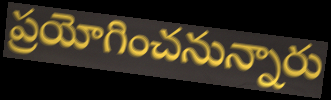
ప్రయోగించనున్నారు